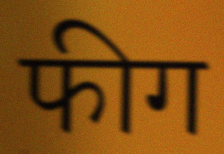
फीग